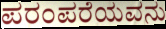
ಪರಂಪರೆಯವನು